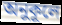
অনুকূলে